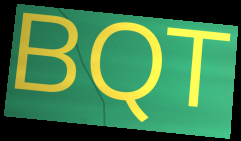
BQT